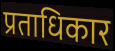
प्रताधिकार